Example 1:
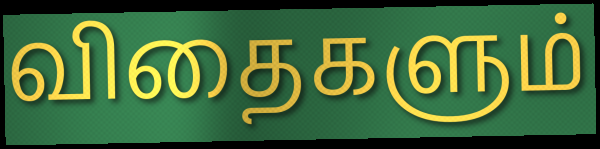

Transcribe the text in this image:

விதைகளும்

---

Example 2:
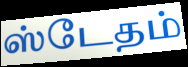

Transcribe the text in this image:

ஸ்டேதம்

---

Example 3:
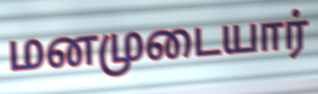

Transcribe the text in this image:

மனமுடையார்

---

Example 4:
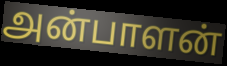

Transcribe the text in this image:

அன்பாளன்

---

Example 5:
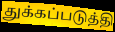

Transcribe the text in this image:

துக்கப்படுத்தி